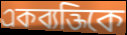
একব্যক্তিকে